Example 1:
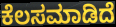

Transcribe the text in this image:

ಕೆಲಸಮಾಡಿದೆ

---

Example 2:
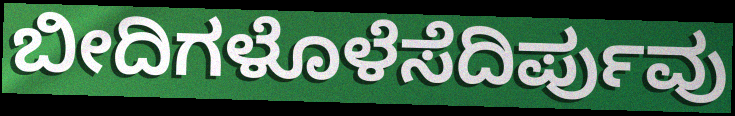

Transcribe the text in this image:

ಬೀದಿಗಳೊಳೆಸೆದಿರ್ಪುವು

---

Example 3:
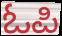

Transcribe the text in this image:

ಓಪಿ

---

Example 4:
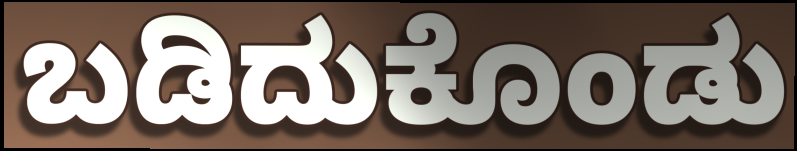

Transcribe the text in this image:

ಬಡಿದುಕೊಂಡು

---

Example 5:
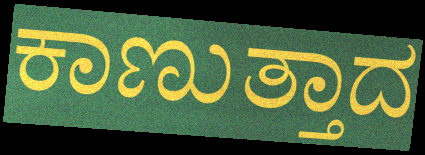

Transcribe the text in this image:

ಕಾಣುತ್ತಾದ